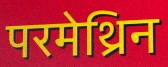
परमेथ्रिन